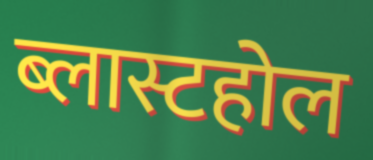
ब्लास्टहोल